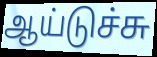
ஆய்டுச்சு